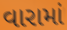
વારામાં